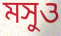
মসুও